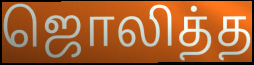
ஜொலித்த